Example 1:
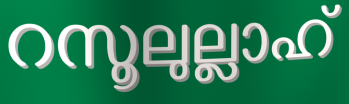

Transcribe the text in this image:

റസൂലുല്ലാഹ്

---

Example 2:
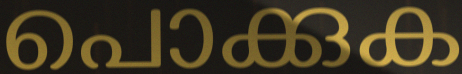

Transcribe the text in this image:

പൊക്കുക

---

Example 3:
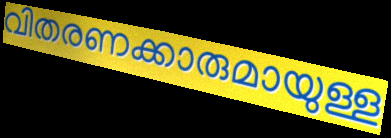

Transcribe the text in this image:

വിതരണക്കാരുമായുള്ള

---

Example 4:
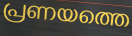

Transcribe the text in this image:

പ്രണയത്തെ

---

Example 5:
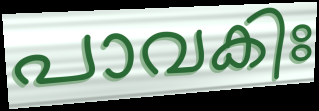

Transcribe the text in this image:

പാവകിഃ